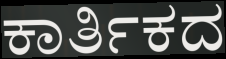
ಕಾರ್ತಿಕದ